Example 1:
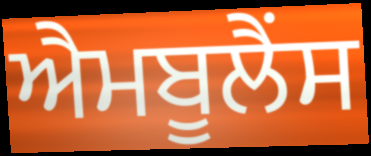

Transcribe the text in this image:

ਐਮਬੂਲੈਂਸ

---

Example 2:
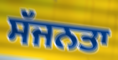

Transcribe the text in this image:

ਸੱਜਨਤਾ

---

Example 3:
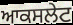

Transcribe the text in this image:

ਆਕਸਲੇਟ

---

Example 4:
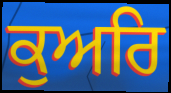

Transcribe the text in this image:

ਕੁਅਰਿ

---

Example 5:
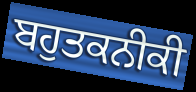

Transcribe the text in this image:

ਬਹੁਤਕਨੀਕੀ